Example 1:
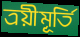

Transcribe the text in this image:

ত্ৰয়ীমূৰ্তি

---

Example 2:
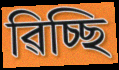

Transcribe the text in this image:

ৱিচ্ছি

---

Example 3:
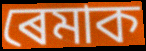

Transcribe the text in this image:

ৰেমাক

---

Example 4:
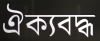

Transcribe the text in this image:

ঐক্যবদ্ধ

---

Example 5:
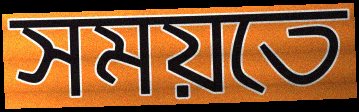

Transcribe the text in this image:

সময়তে